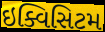
ઇક્વિસિટમ